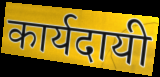
कार्यदायी